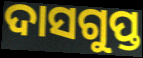
ଦାସଗୁପ୍ତ